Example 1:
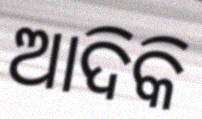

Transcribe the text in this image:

ଆଦିକି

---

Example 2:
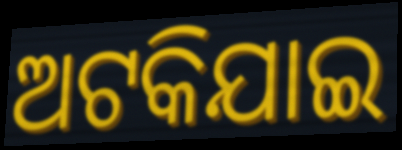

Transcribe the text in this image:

ଅଟକିଯାଇ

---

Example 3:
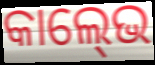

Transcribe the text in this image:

କାଲ୍‍ଭେ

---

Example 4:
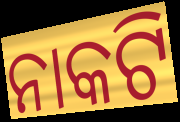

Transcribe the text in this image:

ନାକଟି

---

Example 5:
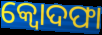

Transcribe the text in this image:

କ୍ବୋଦଫା